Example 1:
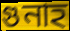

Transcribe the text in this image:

গুনাহ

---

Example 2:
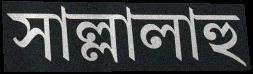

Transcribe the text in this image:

সাল্লালাহু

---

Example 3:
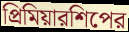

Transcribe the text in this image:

প্রিমিয়ারশিপের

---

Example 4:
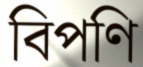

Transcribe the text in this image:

বিপণি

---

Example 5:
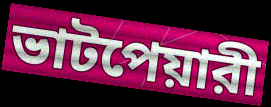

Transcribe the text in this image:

ভাটপেয়ারী